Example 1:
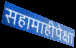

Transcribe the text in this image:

सहामाहीपेक्षा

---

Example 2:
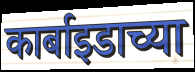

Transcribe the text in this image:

कार्बाइडाच्या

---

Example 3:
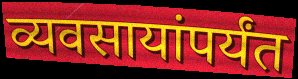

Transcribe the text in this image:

व्यवसायांपर्यंत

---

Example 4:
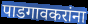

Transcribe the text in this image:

पाडगावकरांना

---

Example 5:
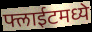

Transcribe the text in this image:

फ्लाईटमध्ये